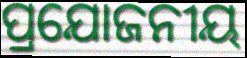
ପ୍ରଯୋଜନୀୟ